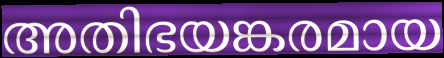
അതിഭയങ്കരമായ